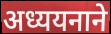
अध्ययनाने